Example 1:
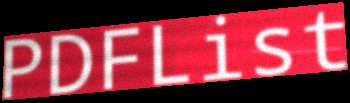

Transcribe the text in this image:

PDFList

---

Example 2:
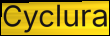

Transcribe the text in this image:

Cyclura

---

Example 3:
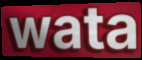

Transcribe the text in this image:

wata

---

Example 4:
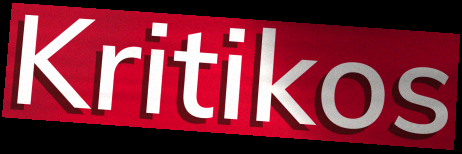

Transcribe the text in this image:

Kritikos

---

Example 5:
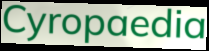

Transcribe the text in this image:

Cyropaedia